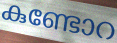
കുണ്ടോറ